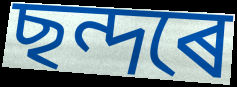
ছন্দৰে